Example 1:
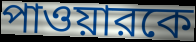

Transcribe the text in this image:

পাওয়ারকে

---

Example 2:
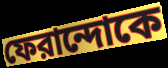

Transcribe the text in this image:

ফেরান্দোকে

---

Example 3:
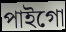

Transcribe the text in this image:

পাইগো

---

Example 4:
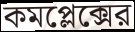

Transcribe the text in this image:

কমপ্লেক্সের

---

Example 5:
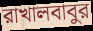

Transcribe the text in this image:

রাখালবাবুর